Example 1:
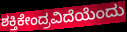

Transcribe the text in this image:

ಶಕ್ತಿಕೇಂದ್ರವಿದೆಯೆಂದು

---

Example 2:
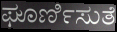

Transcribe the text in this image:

ಘೂರ್ಣಿಸುತೆ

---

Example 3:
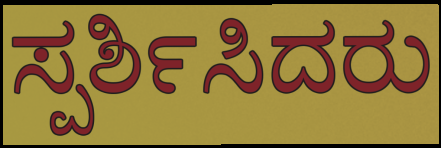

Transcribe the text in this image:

ಸ್ಪರ್ಶಿಸಿದರು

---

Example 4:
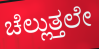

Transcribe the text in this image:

ಚೆಲ್ಲುತ್ತಲೇ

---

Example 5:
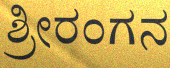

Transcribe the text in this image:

ಶ್ರೀರಂಗನ